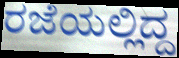
ರಜೆಯಲ್ಲಿದ್ದ